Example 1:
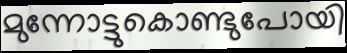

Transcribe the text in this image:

മുന്നോട്ടുകൊണ്ടുപോയി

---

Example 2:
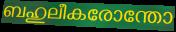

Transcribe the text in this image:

ബഹുലീകരോന്തോ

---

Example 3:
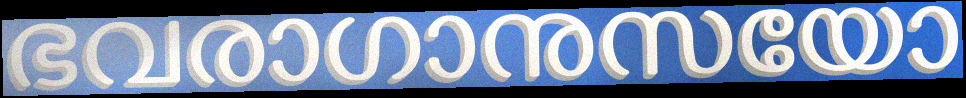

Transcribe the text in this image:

ഭവരാഗാനുസയോ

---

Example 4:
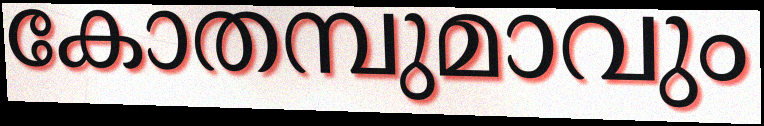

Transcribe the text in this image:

കോതമ്പുമാവും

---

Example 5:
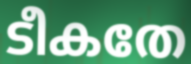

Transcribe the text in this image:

ടീകതേ